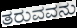
ತರುವವನು